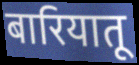
बारियातू